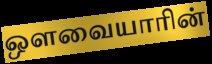
ஔவையாரின்